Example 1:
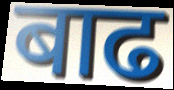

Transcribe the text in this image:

बाढ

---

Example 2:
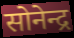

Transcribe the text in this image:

सोनेन्द्र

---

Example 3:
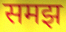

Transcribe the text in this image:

समझ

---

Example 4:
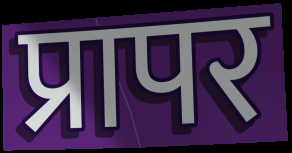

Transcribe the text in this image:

प्रापर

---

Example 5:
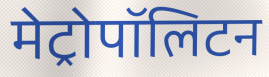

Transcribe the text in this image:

मेट्रोपॉलिटन